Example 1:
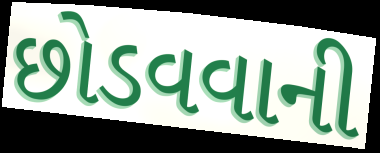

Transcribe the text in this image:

છોડવવાની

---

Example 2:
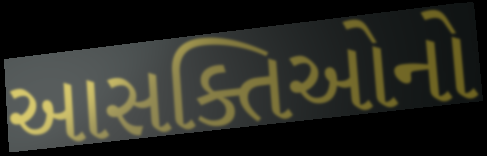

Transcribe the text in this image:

આસક્તિઓનો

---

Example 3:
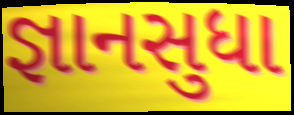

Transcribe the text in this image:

જ્ઞાનસુધા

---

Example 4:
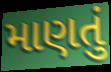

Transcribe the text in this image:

માણતું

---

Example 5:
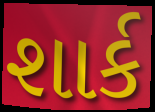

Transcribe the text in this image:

શાર્ક